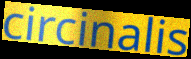
circinalis